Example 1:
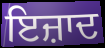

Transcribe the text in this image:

ਇਜ਼ਾਦ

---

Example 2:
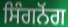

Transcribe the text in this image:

ਸਿੰਗਨੋਂਗ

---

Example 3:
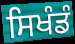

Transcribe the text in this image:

ਸਿਖੰਡੰ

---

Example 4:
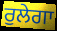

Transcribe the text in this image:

ਰੁਲੇਗਾ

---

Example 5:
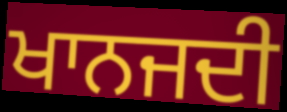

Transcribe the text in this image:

ਖਾਨਜਦੀ